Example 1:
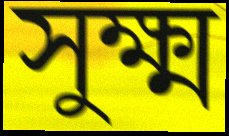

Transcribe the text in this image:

সুক্ষ্ম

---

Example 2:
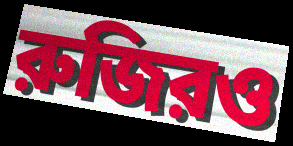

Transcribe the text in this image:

রুজিরও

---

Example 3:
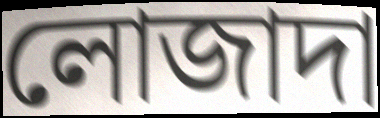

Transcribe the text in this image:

লোজাদা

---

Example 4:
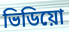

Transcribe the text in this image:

ভিডিয়ো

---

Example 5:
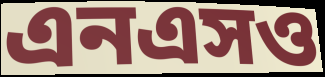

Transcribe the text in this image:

এনএসও